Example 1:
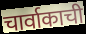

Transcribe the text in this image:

चार्वाकाची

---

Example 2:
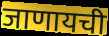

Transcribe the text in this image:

जाणायची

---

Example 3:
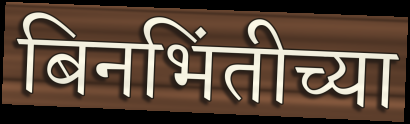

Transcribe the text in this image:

बिनभिंतीच्या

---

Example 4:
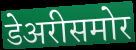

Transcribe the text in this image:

डेअरीसमोर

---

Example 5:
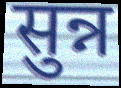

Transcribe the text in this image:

सुन्न